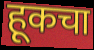
हूकचा